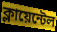
ক্লায়েন্টেল